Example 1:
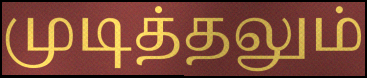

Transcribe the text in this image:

முடித்தலும்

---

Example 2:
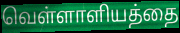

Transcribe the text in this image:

வெள்ளாளியத்தை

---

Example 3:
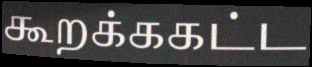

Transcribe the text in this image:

கூறக்ககட்ட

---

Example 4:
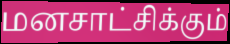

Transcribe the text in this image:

மனசாட்சிக்கும்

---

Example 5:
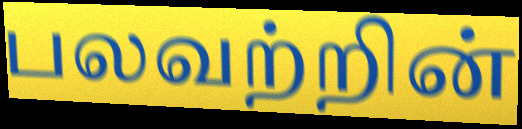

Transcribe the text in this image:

பலவற்றின்